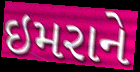
ઇમરાને